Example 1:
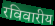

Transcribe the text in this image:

रविवारीय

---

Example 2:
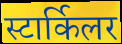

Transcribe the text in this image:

स्टार्किलर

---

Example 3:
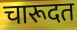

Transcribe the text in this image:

चारूदत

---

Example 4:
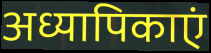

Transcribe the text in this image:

अध्यापिकाएं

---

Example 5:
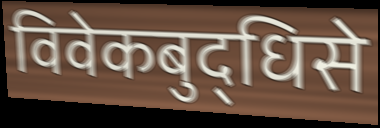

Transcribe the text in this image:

विवेकबुद्धिसे